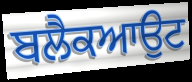
ਬਲੈਕਆਉਟ